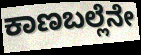
ಕಾಣಬಲ್ಲೆನೇ